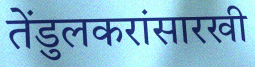
तेंडुलकरांसारखी